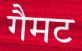
गैमट